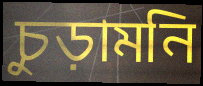
চুড়ামনি